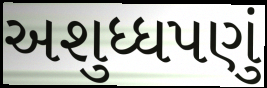
અશુધ્ધપણું